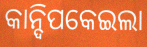
କାନ୍ଦିପକେଇଲା